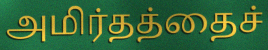
அமிர்தத்தைச்